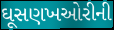
ઘૂસણખઓરીની